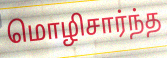
மொழிசார்ந்த